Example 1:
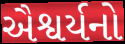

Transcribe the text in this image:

ઐશ્વર્યનો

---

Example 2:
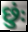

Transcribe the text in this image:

છુંઃ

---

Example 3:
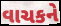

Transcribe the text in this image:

વાચકને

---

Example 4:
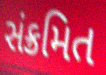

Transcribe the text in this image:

સંક્રમિત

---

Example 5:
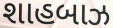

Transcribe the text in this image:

શાહબાઝ